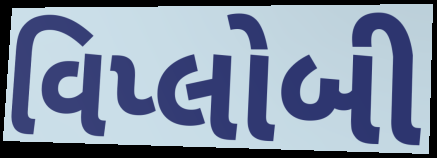
વિપ્લોબી